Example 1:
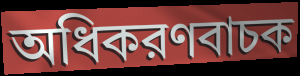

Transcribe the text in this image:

অধিকরণবাচক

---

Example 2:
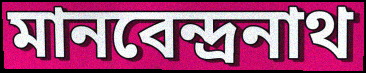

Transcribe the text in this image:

মানবেন্দ্রনাথ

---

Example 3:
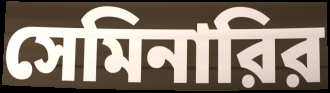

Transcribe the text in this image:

সেমিনারির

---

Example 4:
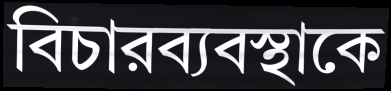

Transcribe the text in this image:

বিচারব্যবস্থাকে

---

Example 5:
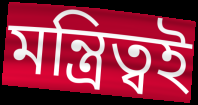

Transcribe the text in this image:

মন্ত্রিত্বই